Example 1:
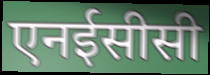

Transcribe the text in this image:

एनईसीसी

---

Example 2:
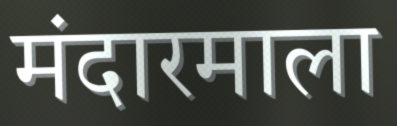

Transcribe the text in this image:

मंदारमाला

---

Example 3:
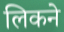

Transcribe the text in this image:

लिकने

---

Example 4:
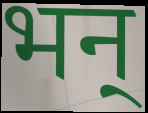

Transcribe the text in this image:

भन्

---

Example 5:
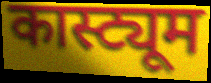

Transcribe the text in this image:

कास्ट्यूम